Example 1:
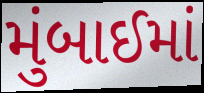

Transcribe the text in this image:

મુંબાઈમાં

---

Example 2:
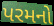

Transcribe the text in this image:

પરમનો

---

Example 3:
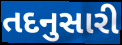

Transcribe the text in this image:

તદનુસારી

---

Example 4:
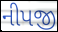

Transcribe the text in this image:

નીપજી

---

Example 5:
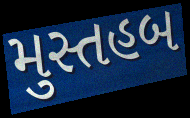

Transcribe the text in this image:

મુસ્તહબ